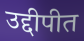
उद्दीपीत